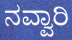
ನವ್ವಾರಿ